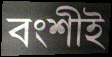
বংশীই